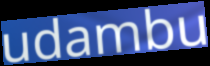
udambu